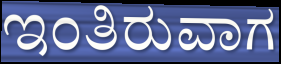
ಇಂತಿರುವಾಗ